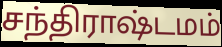
சந்திராஷ்டமம்